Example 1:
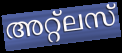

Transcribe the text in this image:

അറ്റ്ലസ്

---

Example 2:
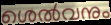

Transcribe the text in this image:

ശെൽവനും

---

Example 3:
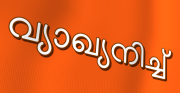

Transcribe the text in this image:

വ്യാഖ്യനിച്ച്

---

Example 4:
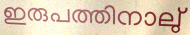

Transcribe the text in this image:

ഇരുപത്തിനാലു്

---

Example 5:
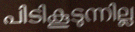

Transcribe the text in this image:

പിടികൂടുന്നില്ല